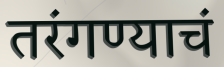
तरंगण्याचं